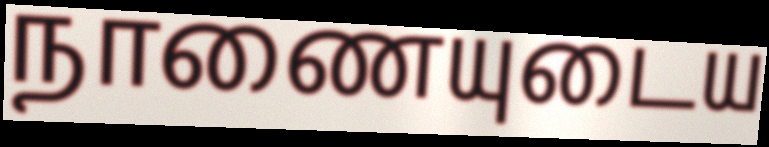
நாணையுடைய